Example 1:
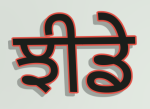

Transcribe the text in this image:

ਝੀਡੇ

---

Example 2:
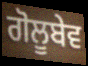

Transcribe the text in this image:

ਗੋਲੂਬੇਵ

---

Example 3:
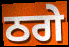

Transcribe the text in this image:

ਠਗੇ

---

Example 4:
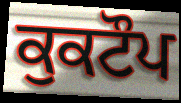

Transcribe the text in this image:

ਕੁਕਟੌਪ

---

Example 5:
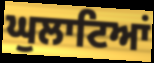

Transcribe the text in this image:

ਘੁਲਾਟਿਆਂ